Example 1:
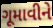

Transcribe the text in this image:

ગૂમાવીને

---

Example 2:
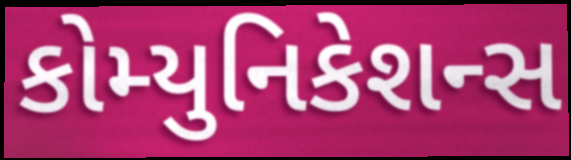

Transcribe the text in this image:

કોમ્યુનિકેશન્સ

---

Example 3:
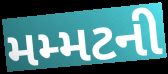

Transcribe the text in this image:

મમ્મટની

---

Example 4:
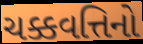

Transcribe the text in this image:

ચક્કવત્તિનો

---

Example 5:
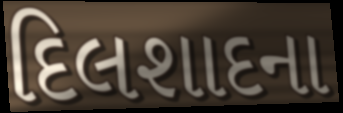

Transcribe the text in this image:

દિલશાદના